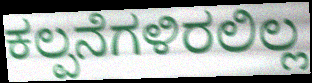
ಕಲ್ಪನೆಗಳಿರಲಿಲ್ಲ